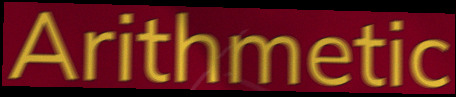
Arithmetic